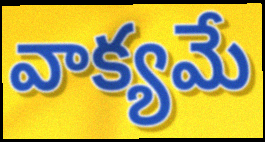
వాక్యమే